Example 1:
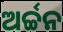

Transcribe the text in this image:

ଅର୍ଚ୍ଚନ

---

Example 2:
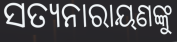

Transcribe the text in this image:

ସତ୍ୟନାରାୟଣଙ୍କୁ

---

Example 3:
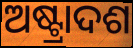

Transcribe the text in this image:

ଅଷ୍ଟ୍ରାଦଶ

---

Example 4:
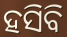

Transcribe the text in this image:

ହସିବି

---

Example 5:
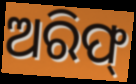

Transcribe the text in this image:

ଅରିଫ୍